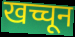
खच्चून